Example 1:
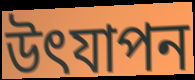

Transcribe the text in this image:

উৎযাপন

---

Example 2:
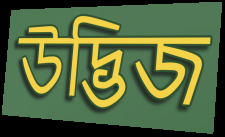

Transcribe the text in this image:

উদ্ভিজ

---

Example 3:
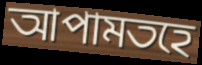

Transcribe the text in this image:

আপামতহে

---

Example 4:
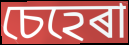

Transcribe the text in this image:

চেহেৰা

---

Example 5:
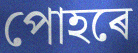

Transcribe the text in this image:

পোহৰে